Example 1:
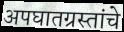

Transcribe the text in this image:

अपघातग्रस्तांचे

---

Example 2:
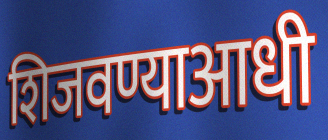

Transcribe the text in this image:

शिजवण्याआधी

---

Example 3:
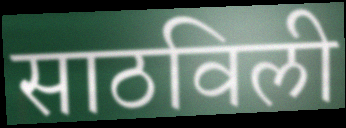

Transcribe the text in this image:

साठविली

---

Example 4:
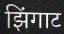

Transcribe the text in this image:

झिंगाट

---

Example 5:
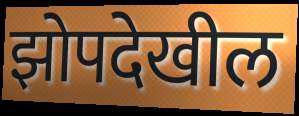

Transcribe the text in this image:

झोपदेखील